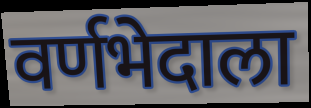
वर्णभेदाला